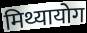
मिथ्यायोग